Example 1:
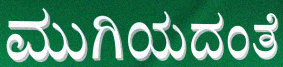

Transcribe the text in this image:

ಮುಗಿಯದಂತೆ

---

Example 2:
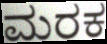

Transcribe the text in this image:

ಮರಕ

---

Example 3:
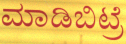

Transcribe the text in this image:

ಮಾಡಿಬಿಟ್ರೆ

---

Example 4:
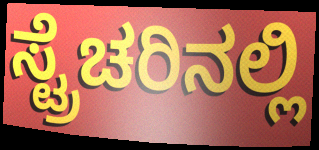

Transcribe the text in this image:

ಸ್ಟ್ರೆಚರಿನಲ್ಲಿ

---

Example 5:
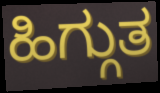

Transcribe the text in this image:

ಹಿಗ್ಗುತ